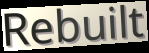
Rebuilt